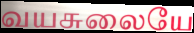
வயசுலையே